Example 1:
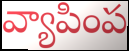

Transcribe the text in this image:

వ్యాపింప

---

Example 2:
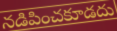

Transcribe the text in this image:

నడిపించకూడదు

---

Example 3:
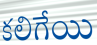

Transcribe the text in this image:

కలిగేయి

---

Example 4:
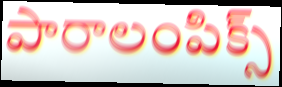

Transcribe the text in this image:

పారాలంపిక్స్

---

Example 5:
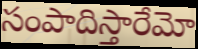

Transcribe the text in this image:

సంపాదిస్తారేమో